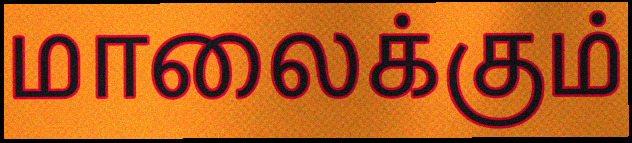
மாலைக்கும்